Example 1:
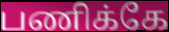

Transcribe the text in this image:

பணிக்கே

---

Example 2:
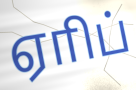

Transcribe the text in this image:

ஏரிப்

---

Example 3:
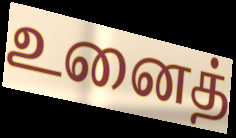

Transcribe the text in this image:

உனைத்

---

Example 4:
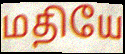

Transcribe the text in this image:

மதியே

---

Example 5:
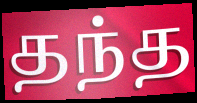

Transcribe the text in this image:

தந்த